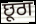
छूठा